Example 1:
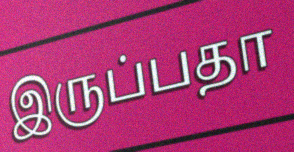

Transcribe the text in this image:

இருப்பதா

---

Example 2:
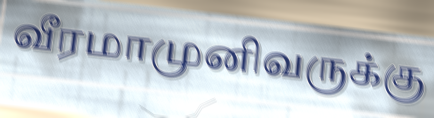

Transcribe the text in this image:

வீரமாமுனிவருக்கு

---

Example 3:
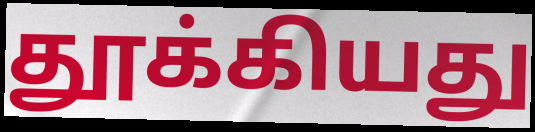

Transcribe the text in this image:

தூக்கியது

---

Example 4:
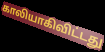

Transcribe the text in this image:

காலியாகிவிட்டது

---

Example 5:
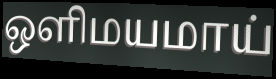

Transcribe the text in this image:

ஒளிமயமாய்